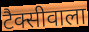
टैक्सीवाला